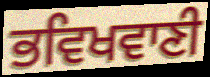
ਭਵਿਖਵਾਣੀ